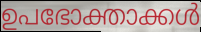
ഉപഭോക്താക്കൾ